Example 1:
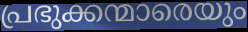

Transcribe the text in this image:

പ്രഭുക്കന്മാരെയും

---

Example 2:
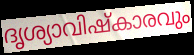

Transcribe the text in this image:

ദൃശ്യാവിഷ്കാരവും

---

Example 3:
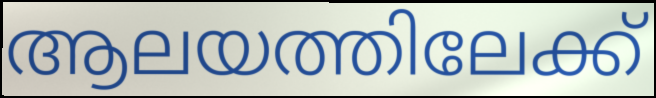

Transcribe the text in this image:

ആലയത്തിലേക്ക്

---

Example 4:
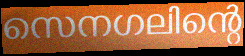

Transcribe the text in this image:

സെനഗലിന്റെ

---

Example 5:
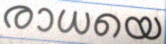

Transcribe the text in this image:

രാധയെ